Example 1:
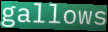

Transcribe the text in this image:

gallows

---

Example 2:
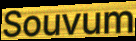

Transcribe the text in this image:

Souvum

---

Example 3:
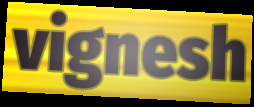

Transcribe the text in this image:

vignesh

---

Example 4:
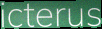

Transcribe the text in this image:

icterus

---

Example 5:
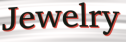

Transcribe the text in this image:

Jewelry